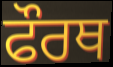
ਫੌਰਥ